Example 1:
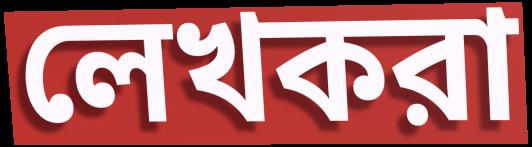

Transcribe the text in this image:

লেখকরা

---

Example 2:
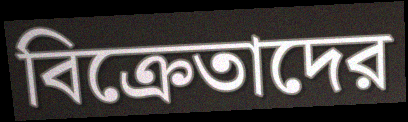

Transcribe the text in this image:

বিক্রেতাদের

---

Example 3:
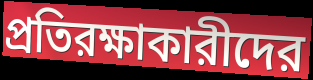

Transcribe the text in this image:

প্রতিরক্ষাকারীদের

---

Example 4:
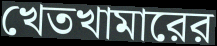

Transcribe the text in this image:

খেতখামারের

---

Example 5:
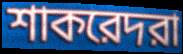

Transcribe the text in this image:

শাকরেদরা